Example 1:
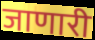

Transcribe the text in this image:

जाणारी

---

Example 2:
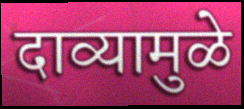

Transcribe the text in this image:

दाव्यामुळे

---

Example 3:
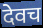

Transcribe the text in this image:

देवच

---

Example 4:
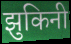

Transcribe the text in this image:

झुकिनी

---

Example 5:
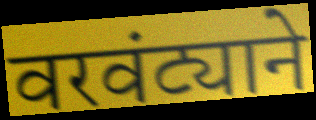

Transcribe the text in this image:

वरवंट्याने